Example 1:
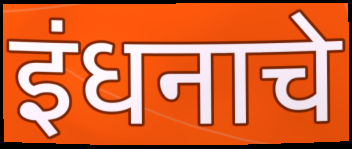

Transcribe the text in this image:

इंधनाचे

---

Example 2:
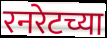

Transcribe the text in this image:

रनरेटच्या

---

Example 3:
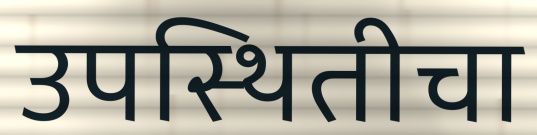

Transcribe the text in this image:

उपस्थितीचा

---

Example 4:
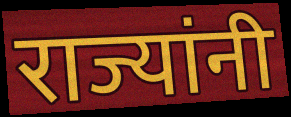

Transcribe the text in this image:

राज्यांनी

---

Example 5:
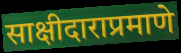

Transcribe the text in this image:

साक्षीदाराप्रमाणे